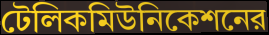
টেলিকমিউনিকেশনের